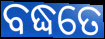
ବଦ୍ଧତେ